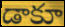
డాకూ